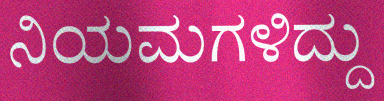
ನಿಯಮಗಳಿದ್ದು